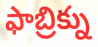
ఫాబ్రిక్ను